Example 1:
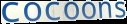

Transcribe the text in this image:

cocoons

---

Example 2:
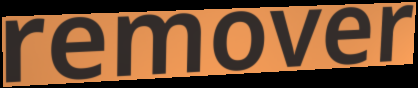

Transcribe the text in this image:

remover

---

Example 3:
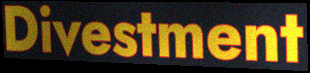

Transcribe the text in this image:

Divestment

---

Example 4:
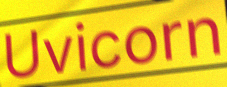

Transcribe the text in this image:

Uvicorn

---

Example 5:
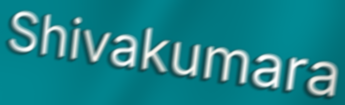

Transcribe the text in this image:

Shivakumara